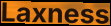
Laxness